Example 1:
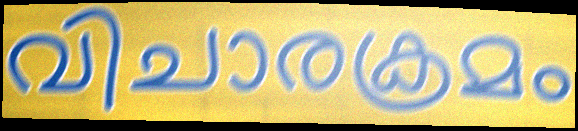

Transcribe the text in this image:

വിചാരക്രമം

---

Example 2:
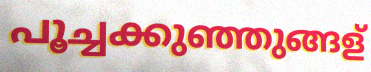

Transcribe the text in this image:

പൂച്ചക്കുഞ്ഞുങ്ങള്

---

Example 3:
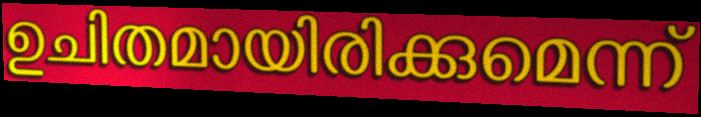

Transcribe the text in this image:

ഉചിതമായിരിക്കുമെന്ന്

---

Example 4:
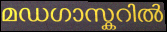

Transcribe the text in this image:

മഡഗാസ്കറിൽ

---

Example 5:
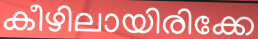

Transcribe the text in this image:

കീഴിലായിരിക്കേ